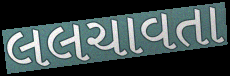
લલચાવતા